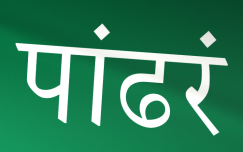
पांढरं